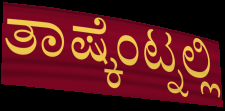
ತಾಷ್ಕೆಂಟ್ನಲ್ಲಿ